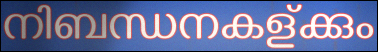
നിബന്ധനകള്ക്കും